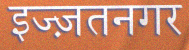
इज्ज़तनगर